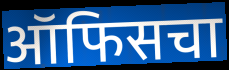
ऑफिसचा